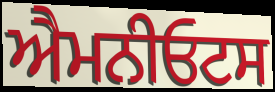
ਐਮਨੀਓਟਸ